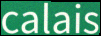
calais